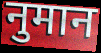
नुमान